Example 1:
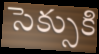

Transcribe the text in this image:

సెక్సుకి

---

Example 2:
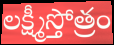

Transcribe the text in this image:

లక్ష్మీస్తోత్రం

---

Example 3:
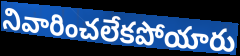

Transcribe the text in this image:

నివారించలేకపోయారు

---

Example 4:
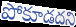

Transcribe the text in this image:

పోకూడదని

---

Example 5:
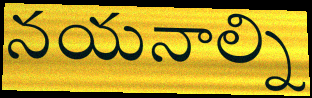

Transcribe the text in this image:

నయనాల్ని